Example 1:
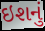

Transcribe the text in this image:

ઇશનું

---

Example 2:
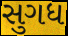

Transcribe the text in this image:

સુગધ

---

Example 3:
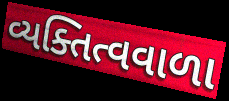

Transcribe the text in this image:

વ્યક્તિત્વવાળા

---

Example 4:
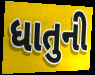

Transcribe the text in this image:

ધાતુની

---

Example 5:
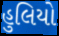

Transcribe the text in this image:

હુલિયો